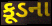
કૂડના